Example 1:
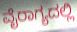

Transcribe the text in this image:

ವೈರಾಗ್ಯದಲ್ಲಿ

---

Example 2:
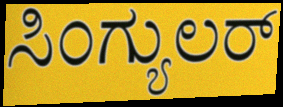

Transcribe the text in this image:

ಸಿಂಗ್ಯುಲರ್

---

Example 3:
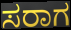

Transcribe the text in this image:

ಸರಾಗ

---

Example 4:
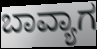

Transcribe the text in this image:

ಬಾವ್ಯಾಗ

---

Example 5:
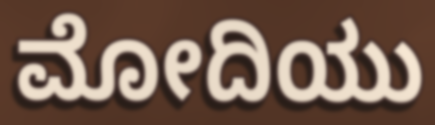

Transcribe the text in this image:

ಮೋದಿಯು